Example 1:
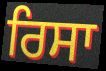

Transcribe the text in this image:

ਰਿਸਾ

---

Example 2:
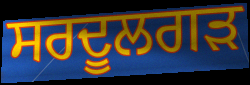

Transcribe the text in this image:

ਸਰਦੂਲਗੜ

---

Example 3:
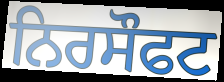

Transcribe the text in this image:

ਨਿਰਸੌਫਟ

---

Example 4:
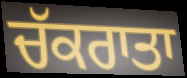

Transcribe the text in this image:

ਚੱਕਰਾਤਾ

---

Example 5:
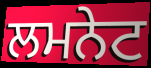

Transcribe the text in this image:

ਲਮਨੇਟ